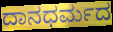
ದಾನಧರ್ಮದ